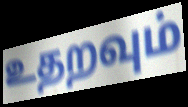
உதறவும்